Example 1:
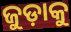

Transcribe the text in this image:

ଜୁଡ଼ାକୁ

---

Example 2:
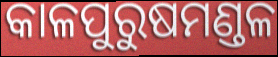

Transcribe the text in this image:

କାଳପୁରୁଷମଣ୍ଡଳ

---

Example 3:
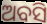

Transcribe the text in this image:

ଅବସି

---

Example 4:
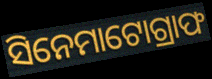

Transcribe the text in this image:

ସିନେମାଟୋଗ୍ରାଫ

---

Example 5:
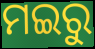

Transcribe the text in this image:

ମଇରୁ